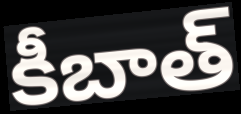
కీబాత్